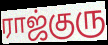
ராஜ்குரு